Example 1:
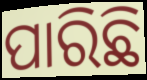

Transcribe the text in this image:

ପାରିଛି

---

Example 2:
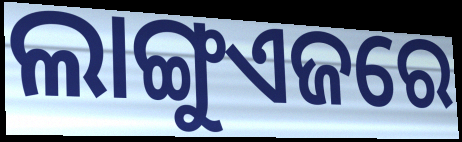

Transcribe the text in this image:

ଲାଙ୍ଗୁଏଜରେ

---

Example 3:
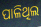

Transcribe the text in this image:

ପାଳିଥିଲ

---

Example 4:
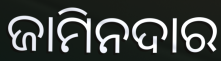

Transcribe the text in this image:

ଜାମିନଦାର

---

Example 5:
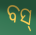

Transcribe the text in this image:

ବସ୍